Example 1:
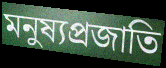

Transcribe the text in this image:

মনুষ্যপ্রজাতি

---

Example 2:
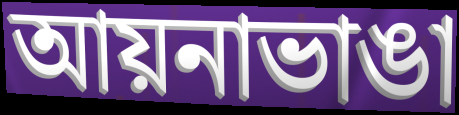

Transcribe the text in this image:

আয়নাভাঙা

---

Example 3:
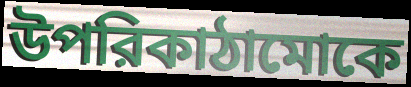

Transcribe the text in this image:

উপরিকাঠামোকে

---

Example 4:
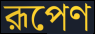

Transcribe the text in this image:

রূপেণ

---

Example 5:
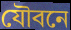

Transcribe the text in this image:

যৌবনে